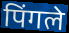
पिंगले